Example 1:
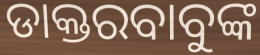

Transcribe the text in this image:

ଡାକ୍ତରବାବୁଙ୍କ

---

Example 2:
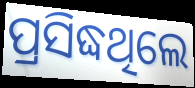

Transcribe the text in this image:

ପ୍ରସିଦ୍ଧଥିଲେ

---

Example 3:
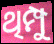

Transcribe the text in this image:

ଥିମ୍ପୁ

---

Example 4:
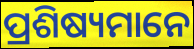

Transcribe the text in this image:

ପ୍ରଶିଷ୍ୟମାନେ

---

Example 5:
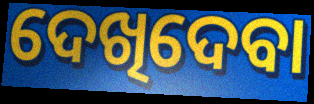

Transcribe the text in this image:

ଦେଖିଦେବା